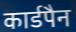
कार्डपैन